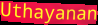
Uthayanan